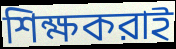
শিক্ষকরাই